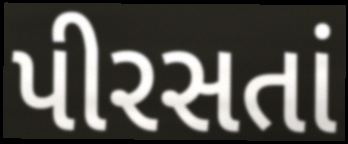
પીરસતાં